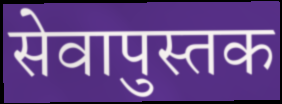
सेवापुस्तक